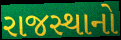
રાજસ્થાનો